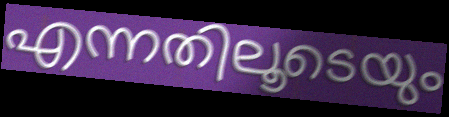
എന്നതിലൂടെയും